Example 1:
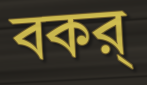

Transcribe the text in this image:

বকর্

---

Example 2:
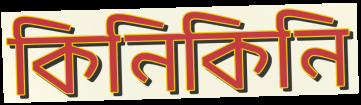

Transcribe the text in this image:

কিনিকিনি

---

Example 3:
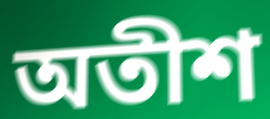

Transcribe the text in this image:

অতীশ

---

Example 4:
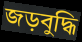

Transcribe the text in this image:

জড়বুদ্ধি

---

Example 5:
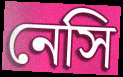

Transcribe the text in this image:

নেসি